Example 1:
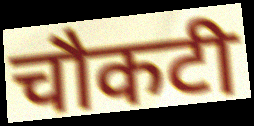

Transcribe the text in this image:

चौकटी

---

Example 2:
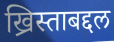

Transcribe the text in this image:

ख्रिस्ताबद्दल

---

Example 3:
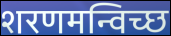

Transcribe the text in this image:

शरणमन्विच्छ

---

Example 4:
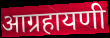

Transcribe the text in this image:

आग्रहायणी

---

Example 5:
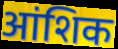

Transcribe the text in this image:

आंशिक